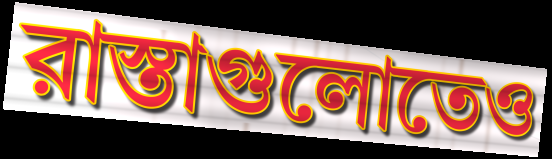
রাস্তাগুলোতেও